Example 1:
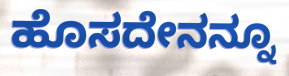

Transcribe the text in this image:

ಹೊಸದೇನನ್ನೂ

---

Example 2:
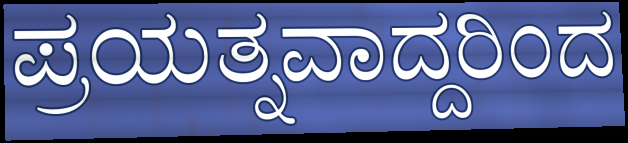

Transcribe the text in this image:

ಪ್ರಯತ್ನವಾದ್ದರಿಂದ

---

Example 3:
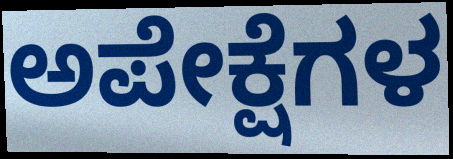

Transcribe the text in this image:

ಅಪೇಕ್ಷೆಗಳ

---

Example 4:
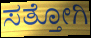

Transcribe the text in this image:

ಸತ್ತೋಗಿ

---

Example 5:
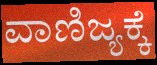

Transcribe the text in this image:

ವಾಣಿಜ್ಯಕ್ಕೆ